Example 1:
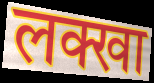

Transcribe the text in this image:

लक्खा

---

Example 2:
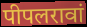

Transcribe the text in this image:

पीपलरावां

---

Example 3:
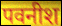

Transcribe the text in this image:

पवनीश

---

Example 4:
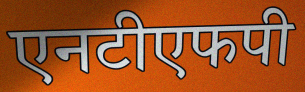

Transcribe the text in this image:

एनटीएफपी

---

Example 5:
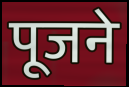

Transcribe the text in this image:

पूजने